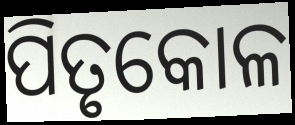
ପିତୃକୋଳ